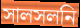
সালসলনি